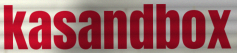
kasandbox